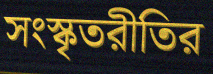
সংস্কৃতরীতির